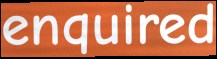
enquired